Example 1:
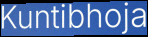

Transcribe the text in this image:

Kuntibhoja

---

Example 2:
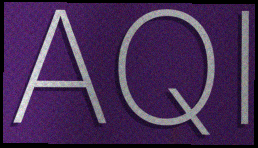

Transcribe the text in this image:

AQI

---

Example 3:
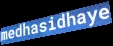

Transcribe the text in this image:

medhasidhaye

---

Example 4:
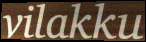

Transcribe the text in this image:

vilakku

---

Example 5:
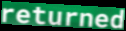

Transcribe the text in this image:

returned